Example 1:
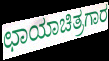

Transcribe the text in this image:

ಛಾಯಾಚಿತ್ರಗಾರ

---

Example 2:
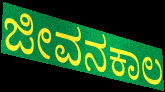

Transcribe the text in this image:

ಜೀವನಕಾಲ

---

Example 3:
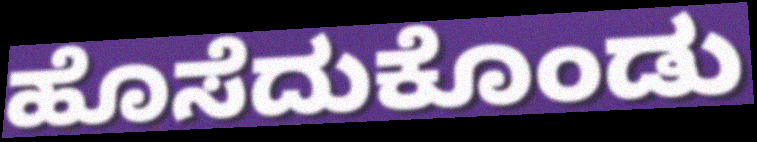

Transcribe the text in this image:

ಹೊಸೆದುಕೊಂಡು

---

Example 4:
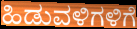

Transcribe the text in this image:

ಹಿಡುವಳಿಗಳಿಗೆ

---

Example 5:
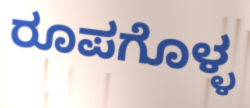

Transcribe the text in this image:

ರೂಪಗೊಳ್ಳ